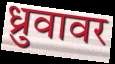
ध्रुवावर